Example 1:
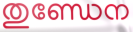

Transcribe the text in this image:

തുണ്ഡേന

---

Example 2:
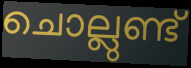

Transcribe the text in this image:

ചൊല്ലുണ്ട്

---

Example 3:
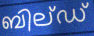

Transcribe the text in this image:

ബില്ഡ്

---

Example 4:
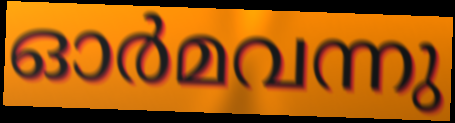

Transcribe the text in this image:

ഓർമവന്നു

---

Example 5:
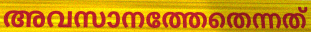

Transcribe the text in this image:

അവസാനത്തേതെന്നത്